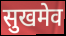
सुखमेव